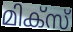
മിക്സ്